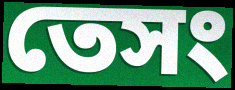
তেসং